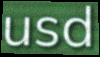
usd